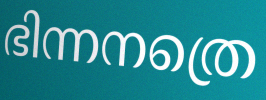
ഭിന്നനത്രെ